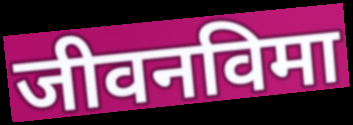
जीवनविमा